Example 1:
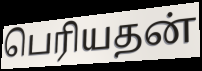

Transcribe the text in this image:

பெரியதன்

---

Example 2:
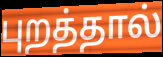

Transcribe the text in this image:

புறத்தால்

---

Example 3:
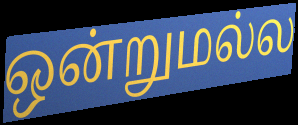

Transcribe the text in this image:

ஒன்றுமல்ல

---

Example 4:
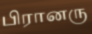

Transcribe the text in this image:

பிரானரு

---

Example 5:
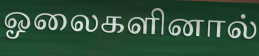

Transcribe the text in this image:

ஓலைகளினால்